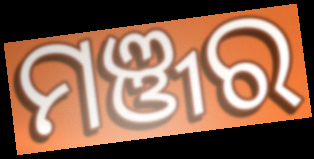
ମଞ୍ଜର